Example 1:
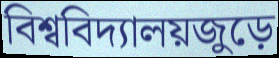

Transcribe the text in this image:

বিশ্ববিদ্যালয়জুড়ে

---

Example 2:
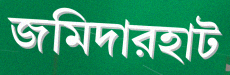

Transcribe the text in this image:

জমিদারহাট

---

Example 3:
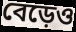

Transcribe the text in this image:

বেড়েও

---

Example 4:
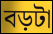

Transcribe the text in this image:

বড়টা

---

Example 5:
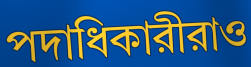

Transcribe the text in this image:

পদাধিকারীরাও